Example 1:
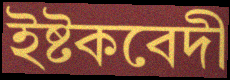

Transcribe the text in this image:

ইষ্টকবেদী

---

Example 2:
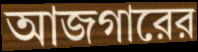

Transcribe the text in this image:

আজগারের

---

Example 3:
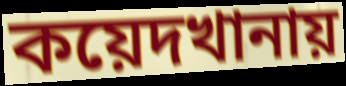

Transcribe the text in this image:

কয়েদখানায়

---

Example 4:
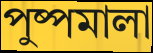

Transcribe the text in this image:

পুষ্পমালা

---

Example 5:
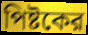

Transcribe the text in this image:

পিষ্টকের